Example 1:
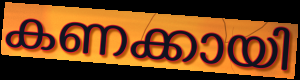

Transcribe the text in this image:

കണക്കായി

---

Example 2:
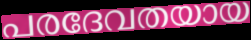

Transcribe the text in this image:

പരദേവതയായ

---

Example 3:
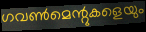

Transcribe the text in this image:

ഗവൺമെന്റുകളെയും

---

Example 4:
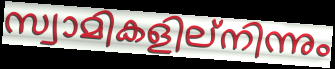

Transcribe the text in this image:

സ്വാമികളില്നിന്നും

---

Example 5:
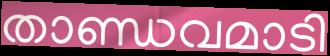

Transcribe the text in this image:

താണ്ഡവമാടി